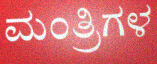
ಮಂತ್ರಿಗಳ